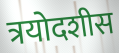
त्रयोदशीस